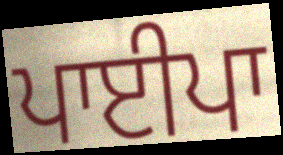
ਪਾਈਪਾ